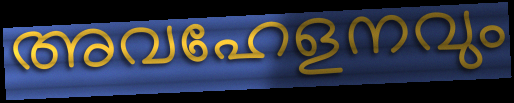
അവഹേളനവും